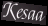
Kesaa